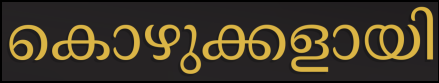
കൊഴുക്കളായി